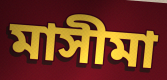
মাসীমা